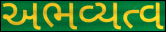
અભવ્યત્વ